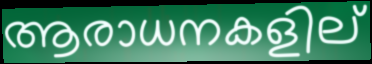
ആരാധനകളില്